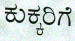
ಕುಕ್ಕರಿಗೆ